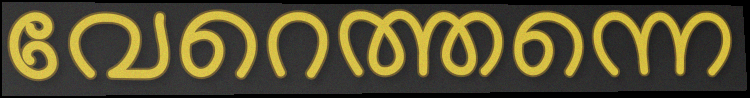
വേറെത്തന്നെ